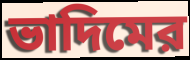
ভাদিমের